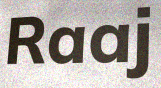
Raaj